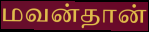
மவன்தான்